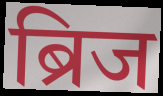
ब्रिज